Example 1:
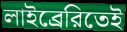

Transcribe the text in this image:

লাইব্রেরিতেই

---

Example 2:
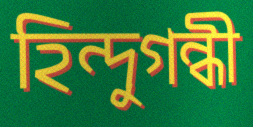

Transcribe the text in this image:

হিন্দুগন্ধী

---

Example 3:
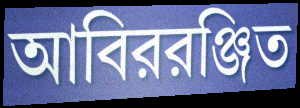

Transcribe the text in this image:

আবিররঞ্জিত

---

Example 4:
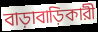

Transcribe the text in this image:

বাড়াবাড়িকারী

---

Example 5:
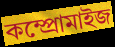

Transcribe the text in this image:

কম্প্রোমাইজ